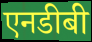
एनडीबी